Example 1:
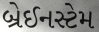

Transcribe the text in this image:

બ્રેઈનસ્ટેમ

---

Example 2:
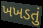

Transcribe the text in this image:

ખખડતું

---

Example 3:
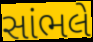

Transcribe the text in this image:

સાંભલે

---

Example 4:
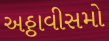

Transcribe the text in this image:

અઠ્ઠાવીસમો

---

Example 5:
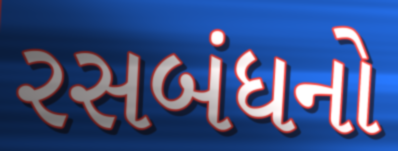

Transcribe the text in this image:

રસબંધનો